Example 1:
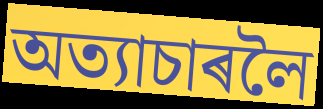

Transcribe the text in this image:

অত্যাচাৰলৈ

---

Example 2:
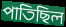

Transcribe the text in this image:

পাতিছিল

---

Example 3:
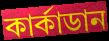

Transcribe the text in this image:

কাৰ্কাডান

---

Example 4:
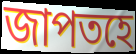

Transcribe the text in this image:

জাপতহে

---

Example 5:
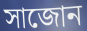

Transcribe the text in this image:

সাজোন